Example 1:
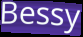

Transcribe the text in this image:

Bessy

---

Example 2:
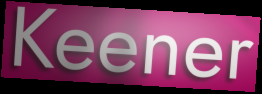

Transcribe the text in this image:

Keener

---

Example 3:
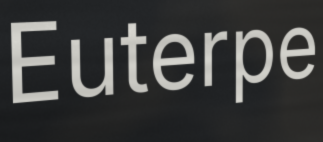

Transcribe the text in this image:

Euterpe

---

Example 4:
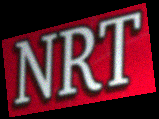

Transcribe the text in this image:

NRT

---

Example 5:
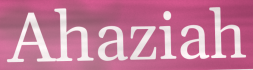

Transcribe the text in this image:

Ahaziah